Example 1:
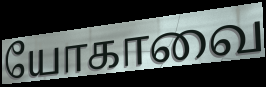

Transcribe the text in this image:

யோகாவை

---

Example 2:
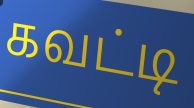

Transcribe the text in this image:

கவட்டி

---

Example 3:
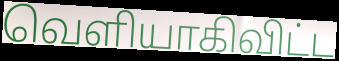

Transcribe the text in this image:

வெளியாகிவிட்ட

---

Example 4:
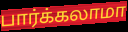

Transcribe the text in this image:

பார்க்கலாமா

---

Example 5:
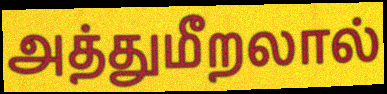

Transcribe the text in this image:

அத்துமீறலால்